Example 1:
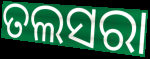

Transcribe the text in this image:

ତଲସରା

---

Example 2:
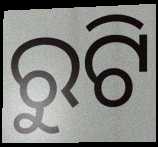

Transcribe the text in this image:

ରୁଟି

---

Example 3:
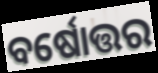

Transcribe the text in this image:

ବର୍ଷୋତ୍ତର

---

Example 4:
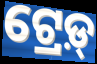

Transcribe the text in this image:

ଟ୍ରେଡ଼୍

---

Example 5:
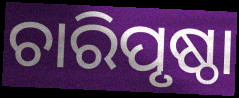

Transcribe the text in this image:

ଚାରିପୃଷ୍ଠା